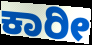
ಕಾರೀ